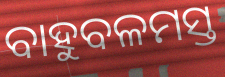
ବାହୁବଳମସ୍ତ